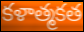
కళాత్మకత